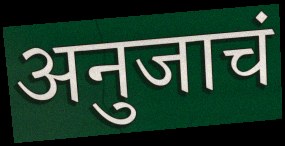
अनुजाचं